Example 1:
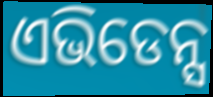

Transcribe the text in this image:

ଏଭିଡେନ୍ସ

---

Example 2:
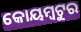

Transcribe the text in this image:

କୋୟମ୍ବଟୁର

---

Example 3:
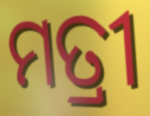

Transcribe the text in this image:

ମତ୍ରୀ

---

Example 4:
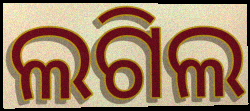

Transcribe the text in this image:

ଲଗିଲ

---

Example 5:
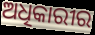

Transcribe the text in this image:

ଅଧିକାରୀର